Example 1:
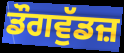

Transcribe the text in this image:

ਡੌਗਵੁੱਡਜ਼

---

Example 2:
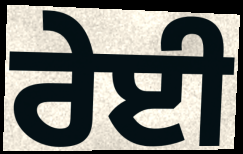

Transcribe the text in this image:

ਰੇਈ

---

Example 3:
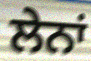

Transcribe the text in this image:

ਲੇਨਾਂ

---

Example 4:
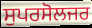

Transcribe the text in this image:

ਸੁਪਰਸੋਲਜਰ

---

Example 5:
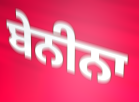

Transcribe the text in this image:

ਬੇਨੀਨਾ